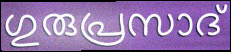
ഗുരുപ്രസാദ്